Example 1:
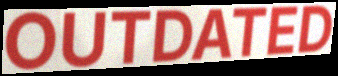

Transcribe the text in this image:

OUTDATED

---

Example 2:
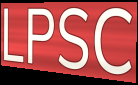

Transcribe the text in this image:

LPSC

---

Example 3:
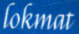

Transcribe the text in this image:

lokmat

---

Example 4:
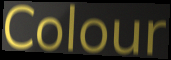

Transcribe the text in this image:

Colour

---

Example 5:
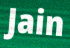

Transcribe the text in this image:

Jain